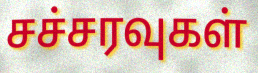
சச்சரவுகள்